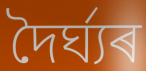
দৈৰ্ঘ্যৰ